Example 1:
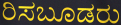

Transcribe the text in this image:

ರಿಸಬೂಡರು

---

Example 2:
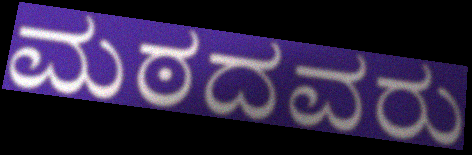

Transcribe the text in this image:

ಮಠದವರು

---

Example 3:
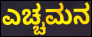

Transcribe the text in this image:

ಎಚ್ಚಮನ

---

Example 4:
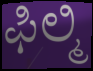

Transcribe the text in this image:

ಫಿಲ್ಮಿ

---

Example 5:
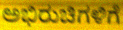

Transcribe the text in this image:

ಅಭಿರುಚಿಗಳಿಗೆ